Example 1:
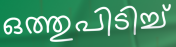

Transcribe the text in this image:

ഒത്തുപിടിച്ച്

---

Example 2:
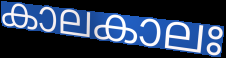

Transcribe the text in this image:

കാലകാലഃ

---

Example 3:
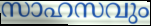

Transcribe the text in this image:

സാഹസവും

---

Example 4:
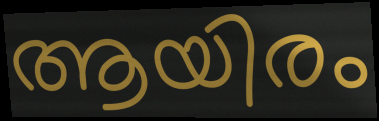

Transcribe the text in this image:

ആയിരം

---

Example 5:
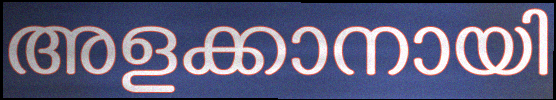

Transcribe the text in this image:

അളക്കാനായി